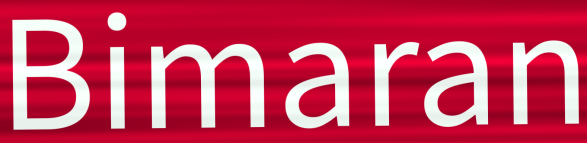
Bimaran